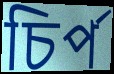
চির্প